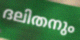
ദലിതനും